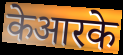
केआरके